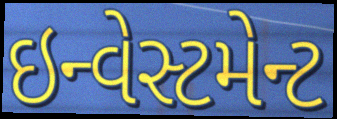
ઇન્વેસ્ટમેન્ટ